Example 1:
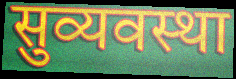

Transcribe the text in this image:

सुव्यवस्था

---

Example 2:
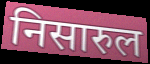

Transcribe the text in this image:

निसारुल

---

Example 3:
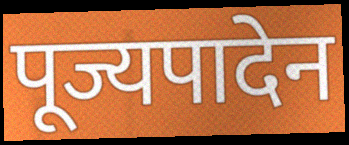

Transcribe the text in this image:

पूज्यपादेन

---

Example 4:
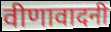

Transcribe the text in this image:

वीणावादनी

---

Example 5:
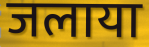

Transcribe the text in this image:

जलाया